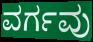
ವರ್ಗವು